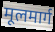
मूलमार्ग